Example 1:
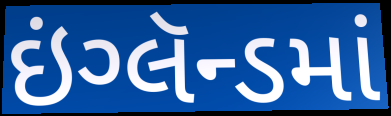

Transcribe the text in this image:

ઇંગ્લૅન્ડમાં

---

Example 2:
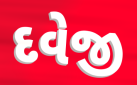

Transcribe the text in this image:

દવેજી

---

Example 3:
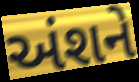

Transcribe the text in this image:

અંશને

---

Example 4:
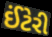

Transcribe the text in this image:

ઈંટેરી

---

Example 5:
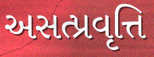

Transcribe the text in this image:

અસત્પ્રવૃત્તિ